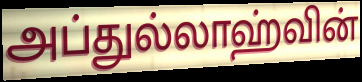
அப்துல்லாஹ்வின்